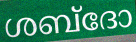
ശബ്ദോ